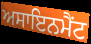
ਅਸਾਇਨਮੈਂਟ